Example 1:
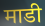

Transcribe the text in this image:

माडी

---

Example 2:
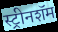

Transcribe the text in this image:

स्ट्रीनशॅम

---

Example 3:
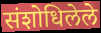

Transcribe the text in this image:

संशोधिलेले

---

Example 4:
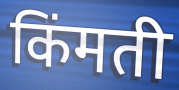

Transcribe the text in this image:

किंमती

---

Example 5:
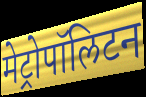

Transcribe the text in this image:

मेट्रोपॉलिटन